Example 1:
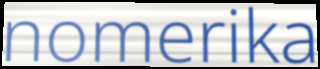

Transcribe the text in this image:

nomerika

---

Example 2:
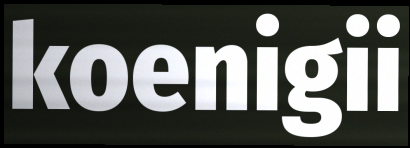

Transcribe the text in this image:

koenigii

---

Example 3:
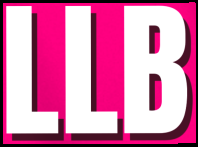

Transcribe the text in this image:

LLB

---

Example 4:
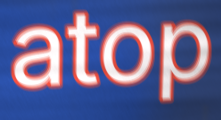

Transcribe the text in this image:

atop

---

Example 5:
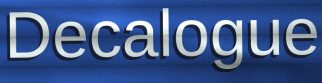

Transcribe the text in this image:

Decalogue